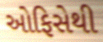
ઓફિસેથી